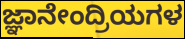
ಜ್ಞಾನೇಂದ್ರಿಯಗಳ